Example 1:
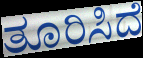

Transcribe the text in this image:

ತೂರಿಸಿದೆ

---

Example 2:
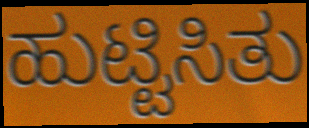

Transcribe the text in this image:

ಹುಟ್ಟಿಸಿತು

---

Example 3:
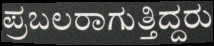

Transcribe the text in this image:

ಪ್ರಬಲರಾಗುತ್ತಿದ್ದರು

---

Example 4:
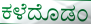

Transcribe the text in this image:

ಕಳೆದೊಡಂ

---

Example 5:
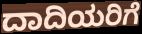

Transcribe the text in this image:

ದಾದಿಯರಿಗೆ